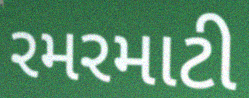
રમરમાટી